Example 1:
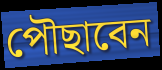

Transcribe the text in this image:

পৌছাবেন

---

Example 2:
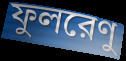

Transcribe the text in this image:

ফুলরেণু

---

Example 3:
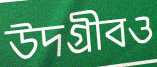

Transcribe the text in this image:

উদগ্রীবও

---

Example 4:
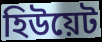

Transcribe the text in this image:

হিউয়েট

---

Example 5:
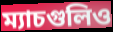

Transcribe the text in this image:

ম্যাচগুলিও